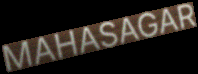
MAHASAGAR